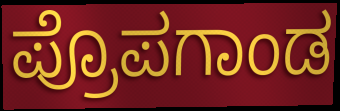
ಪ್ರೊಪಗಾಂಡ